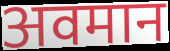
अवमान